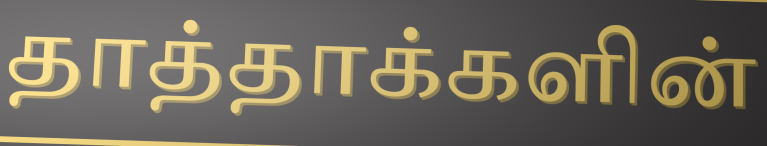
தாத்தாக்களின்